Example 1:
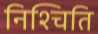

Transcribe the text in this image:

निश्चिति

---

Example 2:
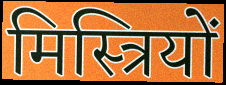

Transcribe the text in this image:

मिस्त्रियों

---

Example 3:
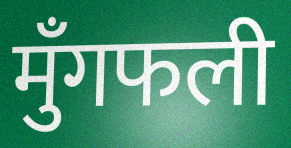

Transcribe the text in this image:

मुँगफली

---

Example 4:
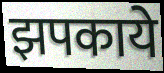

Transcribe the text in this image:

झपकाये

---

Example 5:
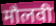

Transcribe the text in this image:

मौलवी